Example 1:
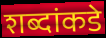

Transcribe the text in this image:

शब्दांकडे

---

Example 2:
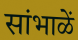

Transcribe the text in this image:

सांभाळें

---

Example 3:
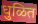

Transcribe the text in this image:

धुळित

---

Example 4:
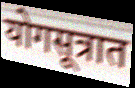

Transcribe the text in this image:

योगसूत्रात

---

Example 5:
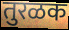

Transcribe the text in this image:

तुरळक